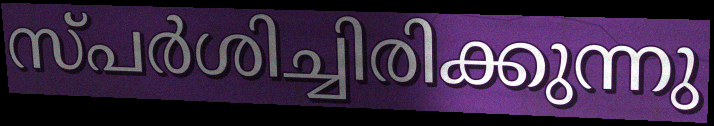
സ്പർശിച്ചിരിക്കുന്നു